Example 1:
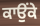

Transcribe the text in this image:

ਕਾਉਂਕੇ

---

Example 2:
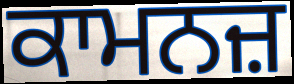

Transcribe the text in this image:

ਕਾਮਨਜ਼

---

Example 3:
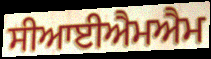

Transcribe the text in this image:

ਸੀਆਈਐਮਐਮ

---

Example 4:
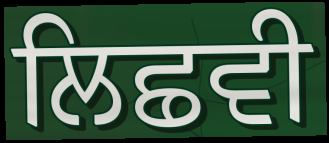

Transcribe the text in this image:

ਲਿਛਵੀ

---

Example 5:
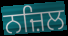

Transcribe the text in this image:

ਨਜ਼ਿਲ